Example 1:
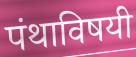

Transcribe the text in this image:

पंथाविषयी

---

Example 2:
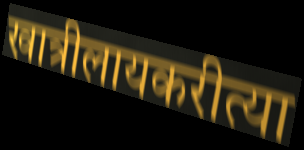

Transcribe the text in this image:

खात्रीलायकरीत्या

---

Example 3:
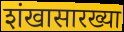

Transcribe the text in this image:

शंखासारख्या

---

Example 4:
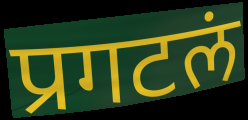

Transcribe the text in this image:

प्रगटलं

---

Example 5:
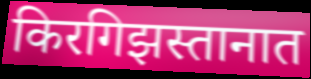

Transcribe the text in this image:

किरगिझस्तानात